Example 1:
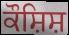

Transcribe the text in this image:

ਕੌਸ਼ਿਸ਼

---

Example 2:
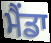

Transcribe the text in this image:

ਮੈਂਡਾ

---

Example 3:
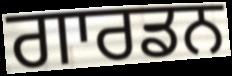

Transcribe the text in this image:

ਗਾਰਡਨ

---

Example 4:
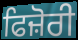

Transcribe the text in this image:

ਫਿਜ਼ੋਰੀ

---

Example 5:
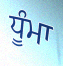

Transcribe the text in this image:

ਧੂੰਮਾ